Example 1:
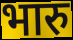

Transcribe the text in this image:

भारु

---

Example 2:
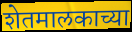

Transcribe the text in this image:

शेतमालकाच्या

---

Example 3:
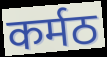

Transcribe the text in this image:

कर्मठ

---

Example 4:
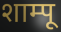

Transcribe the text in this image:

शाम्पू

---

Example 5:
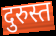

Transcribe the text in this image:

दुरुस्त